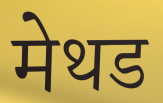
मेथड